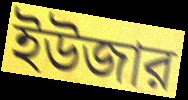
ইউজার